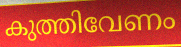
കുത്തിവേണം